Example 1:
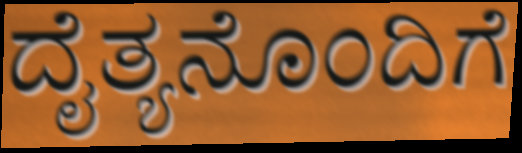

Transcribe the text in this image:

ದೈತ್ಯನೊಂದಿಗೆ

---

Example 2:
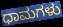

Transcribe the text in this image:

ಧಾಮಗಳು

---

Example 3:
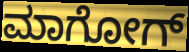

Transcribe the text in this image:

ಮಾಗೋಗ್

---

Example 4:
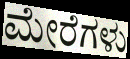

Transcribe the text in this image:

ಮೇರೆಗಳು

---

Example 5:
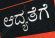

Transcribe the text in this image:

ಆದ್ಯತೆಗೆ